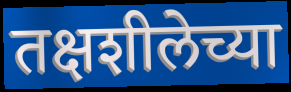
तक्षशीलेच्या